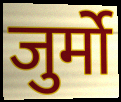
जुर्मो